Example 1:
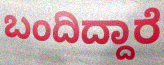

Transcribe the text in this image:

ಬಂದಿದ್ದಾರೆ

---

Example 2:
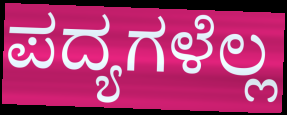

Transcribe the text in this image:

ಪದ್ಯಗಳೆಲ್ಲ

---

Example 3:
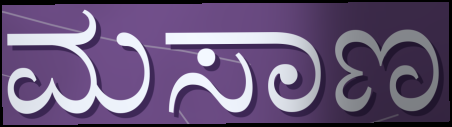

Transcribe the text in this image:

ಮಸಾಣ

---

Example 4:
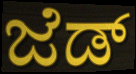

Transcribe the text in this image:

ಜೆಡ್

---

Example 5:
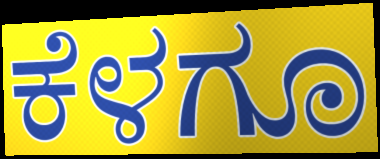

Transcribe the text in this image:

ಕೆಳಗೂ